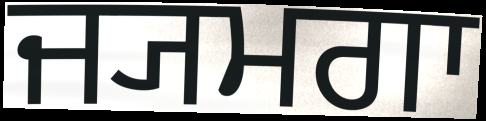
ਜ੍ਯਮਗਾ